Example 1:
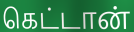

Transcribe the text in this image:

கெட்டான்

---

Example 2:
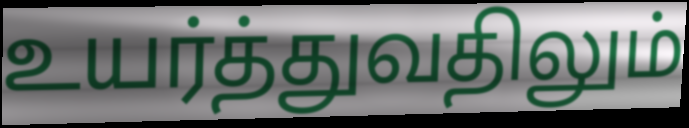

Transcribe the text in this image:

உயர்த்துவதிலும்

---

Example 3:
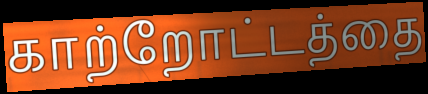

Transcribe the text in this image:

காற்றோட்டத்தை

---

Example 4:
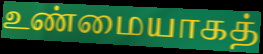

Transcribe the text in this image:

உண்மையாகத்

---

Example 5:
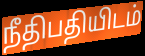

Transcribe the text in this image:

நீதிபதியிடம்